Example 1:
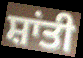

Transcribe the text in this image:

ਸ਼ਾਂਤੀ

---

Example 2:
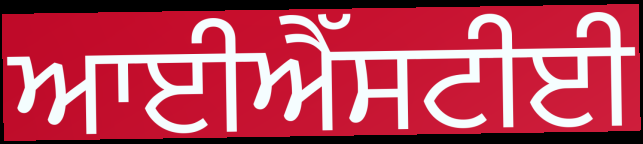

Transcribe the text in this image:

ਆਈਐੱਸਟੀਈ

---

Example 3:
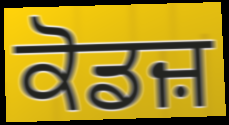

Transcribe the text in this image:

ਕੋਡਜ਼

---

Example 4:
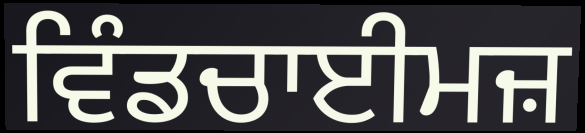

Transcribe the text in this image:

ਵਿੰਡਚਾਈਮਜ਼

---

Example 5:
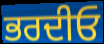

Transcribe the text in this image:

ਭਰਦੀਓ